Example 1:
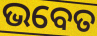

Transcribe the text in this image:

ଭବେତ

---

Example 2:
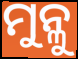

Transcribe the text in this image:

ମୁନ୍ଳୁ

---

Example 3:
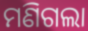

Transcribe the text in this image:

ମଣିଗଲା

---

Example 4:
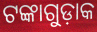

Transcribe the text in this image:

ଟଙ୍କାଗୁଡ଼ାକ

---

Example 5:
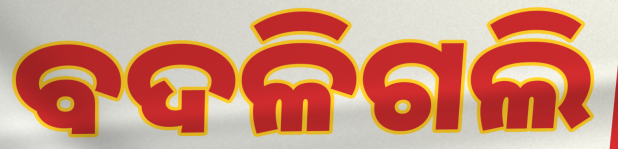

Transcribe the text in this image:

ବଦଳିଗଲି